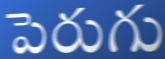
పెరుగు